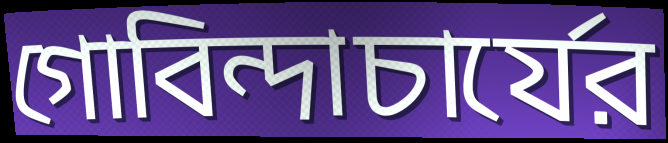
গোবিন্দাচার্যের